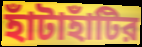
হাঁটাহাঁটির